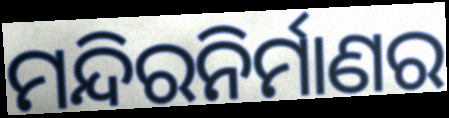
ମନ୍ଦିରନିର୍ମାଣର